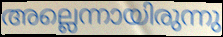
അല്ലെന്നായിരുന്നു